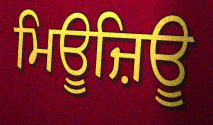
ਮਿਊਜ਼ਿਊ